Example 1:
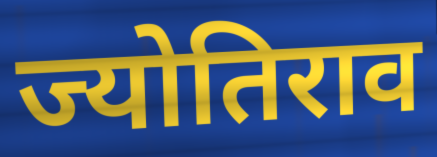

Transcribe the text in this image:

ज्योतिराव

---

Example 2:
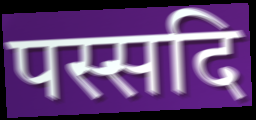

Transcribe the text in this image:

पस्सदि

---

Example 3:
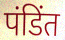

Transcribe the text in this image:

पंडिंत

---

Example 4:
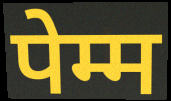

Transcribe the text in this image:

पेम्म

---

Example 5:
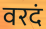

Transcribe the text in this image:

वरदं